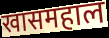
खासमहाल